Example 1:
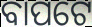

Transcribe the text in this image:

ବାପଟେ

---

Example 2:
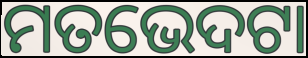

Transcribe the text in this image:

ମତଭେଦଟା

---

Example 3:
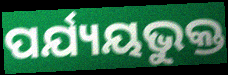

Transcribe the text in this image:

ପର୍ଯ୍ୟୟଭୁକ୍ତ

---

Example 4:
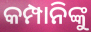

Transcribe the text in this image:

କମ୍ପାନିଙ୍କୁ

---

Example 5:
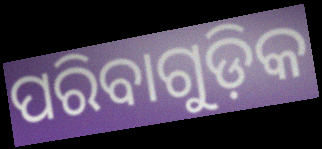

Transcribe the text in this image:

ପରିବାଗୁଡ଼ିକ